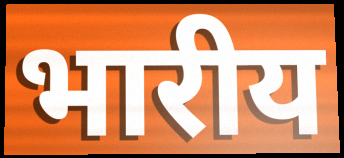
भारीय